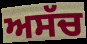
ਅਸੱਚ